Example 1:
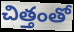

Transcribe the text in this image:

చిత్తంతో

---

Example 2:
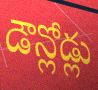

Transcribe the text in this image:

డౌన్లోడ్లు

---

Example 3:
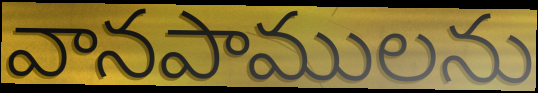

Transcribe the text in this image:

వానపాములను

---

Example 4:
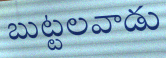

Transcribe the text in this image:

బుట్టలవాడు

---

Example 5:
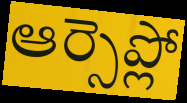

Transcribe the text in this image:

ఆర్సెప్లో